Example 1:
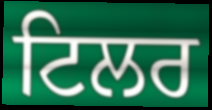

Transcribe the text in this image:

ਟਿਲਰ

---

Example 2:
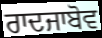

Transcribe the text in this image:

ਰਾਦਜਾਬੋਵ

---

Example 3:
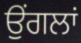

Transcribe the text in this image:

ਉਂਗਲਾਂ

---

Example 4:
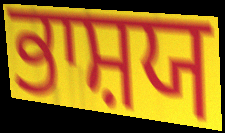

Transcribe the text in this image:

ਭਾਸ਼ਯ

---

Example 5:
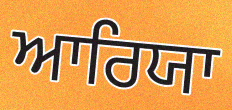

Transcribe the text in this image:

ਆਰਿਯਾ